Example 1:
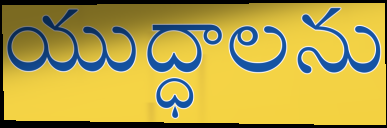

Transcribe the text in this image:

యుద్ధాలను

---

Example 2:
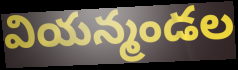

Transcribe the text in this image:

వియన్మండల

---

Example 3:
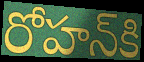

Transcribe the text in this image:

రోహన్‌కి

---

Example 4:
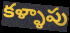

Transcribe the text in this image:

కళ్ళాపు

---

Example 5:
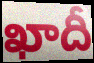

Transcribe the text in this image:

ఖాదీ